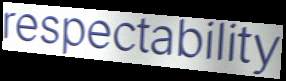
respectability